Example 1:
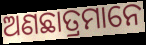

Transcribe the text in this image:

ଅଣଛାତ୍ରମାନେ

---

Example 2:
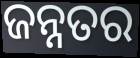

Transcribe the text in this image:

ଜନ୍ନତର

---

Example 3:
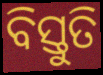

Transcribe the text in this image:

ବିସ୍ତୁତି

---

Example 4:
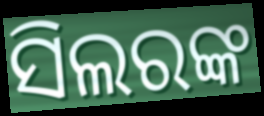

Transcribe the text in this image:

ସିଲରଙ୍କ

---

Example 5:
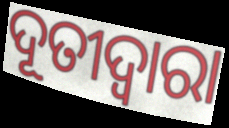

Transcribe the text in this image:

ଦୂତୀଦ୍ୱାରା